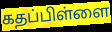
கதப்பிள்ளை